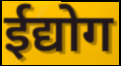
ईद्योग